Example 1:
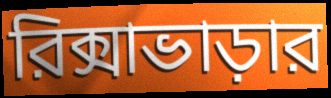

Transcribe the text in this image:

রিক্সাভাড়ার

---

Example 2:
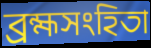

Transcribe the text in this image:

ব্রহ্মসংহিতা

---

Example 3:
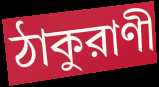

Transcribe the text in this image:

ঠাকুরাণী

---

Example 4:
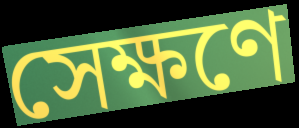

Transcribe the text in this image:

সেক্ষণে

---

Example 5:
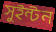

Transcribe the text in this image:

সুইন্টন